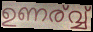
ഉണര്വ്വ്